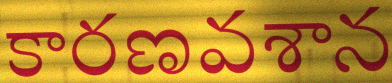
కారణవశాన